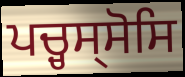
ਪਚ੍ਚਸ੍ਸੋਸਿ